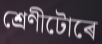
শ্ৰেণীটোৰে